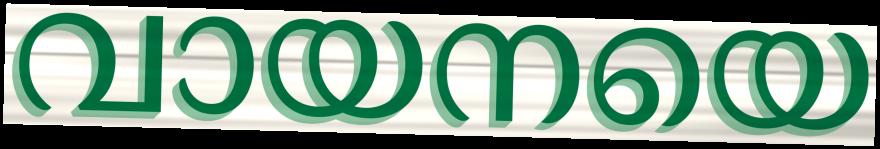
വായനയെ